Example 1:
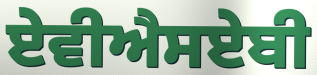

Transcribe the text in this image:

ਏਵੀਐਸਏਬੀ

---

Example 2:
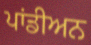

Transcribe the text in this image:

ਪਾਂਡੀਅਨ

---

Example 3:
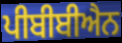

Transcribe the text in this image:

ਪੀਬੀਬੀਐਨ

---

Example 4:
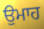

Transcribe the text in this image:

ਉਮਾਹ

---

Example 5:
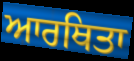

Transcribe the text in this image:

ਆਰਥਿਤਾ